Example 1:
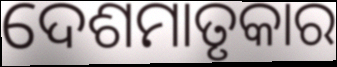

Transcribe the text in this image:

ଦେଶମାତୃକାର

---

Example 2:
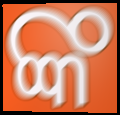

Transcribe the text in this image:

ଙ୍କ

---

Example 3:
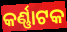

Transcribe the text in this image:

କର୍ଣ୍ଣାଟକ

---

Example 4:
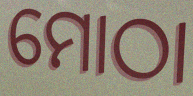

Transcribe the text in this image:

ମୋଠା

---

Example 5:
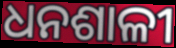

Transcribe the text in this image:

ଧନଶାଳୀ